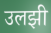
उलझी